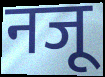
नजू